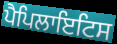
ਪੈਪਿਲਾਇਟਿਸ